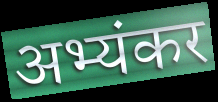
अभ्यंकर